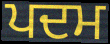
ਪਦਮ